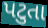
પટુતા